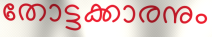
തോട്ടക്കാരനും